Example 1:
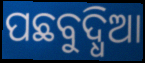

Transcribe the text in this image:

ପଛବୁଦ୍ଧିଆ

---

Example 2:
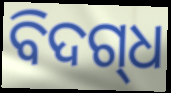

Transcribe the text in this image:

ବିଦଗ୍‌ଧ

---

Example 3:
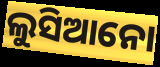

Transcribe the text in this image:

ଲୁସିଆନୋ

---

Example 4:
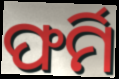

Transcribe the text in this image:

ଫର୍ମି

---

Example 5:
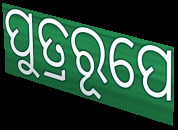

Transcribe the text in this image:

ପୁତ୍ରରୂପେ